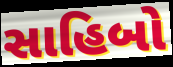
સાહિબો